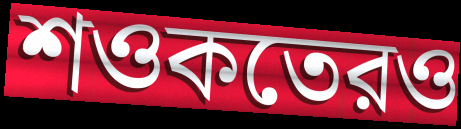
শওকতেরও